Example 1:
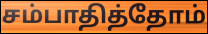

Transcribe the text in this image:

சம்பாதித்தோம்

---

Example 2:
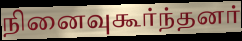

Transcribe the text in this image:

நினைவுகூர்ந்தனர்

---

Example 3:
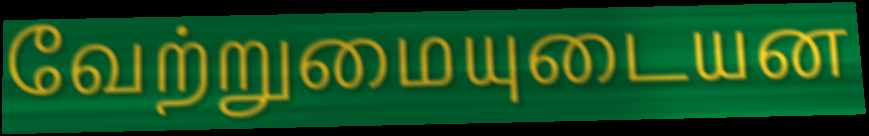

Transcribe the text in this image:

வேற்றுமையுடையன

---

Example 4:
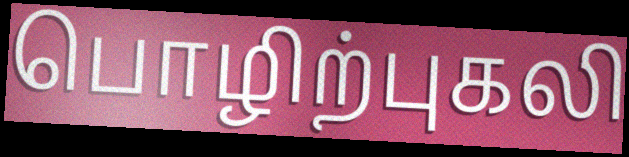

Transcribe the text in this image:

பொழிற்புகலி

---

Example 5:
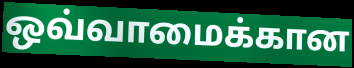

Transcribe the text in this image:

ஒவ்வாமைக்கான